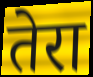
तेरा